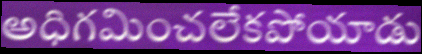
అధిగమించలేకపోయాడు